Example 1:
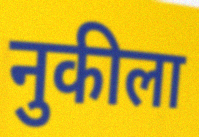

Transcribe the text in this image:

नुकीला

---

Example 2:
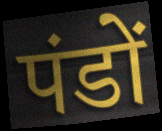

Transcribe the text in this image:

पंडों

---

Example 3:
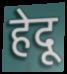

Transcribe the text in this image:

हेदू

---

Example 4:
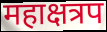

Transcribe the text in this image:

महाक्षत्रप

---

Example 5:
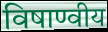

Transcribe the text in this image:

विषाण्वीय